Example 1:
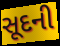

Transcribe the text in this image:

સૂદની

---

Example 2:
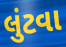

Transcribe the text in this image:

લુંટવા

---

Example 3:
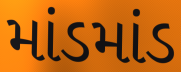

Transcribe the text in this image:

માંડમાંડ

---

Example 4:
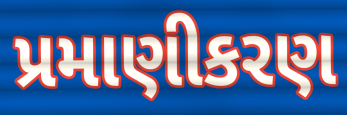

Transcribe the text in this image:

પ્રમાણીકરણ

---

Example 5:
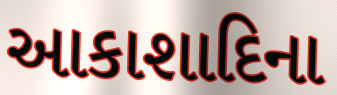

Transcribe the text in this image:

આકાશાદિના